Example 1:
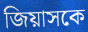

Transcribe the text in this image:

জিয়াসকে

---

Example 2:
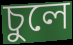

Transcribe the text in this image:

চুলে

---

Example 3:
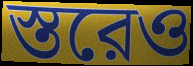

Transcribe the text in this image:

স্তরেও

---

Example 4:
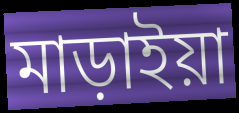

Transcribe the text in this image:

মাড়াইয়া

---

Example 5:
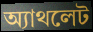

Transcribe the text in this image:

অ্যাথলেট